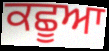
ਕਛੂਆ